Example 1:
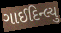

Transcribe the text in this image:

ગાઈદિન્લ્યુ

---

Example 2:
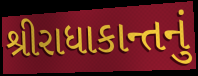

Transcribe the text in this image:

શ્રીરાધાકાન્તનું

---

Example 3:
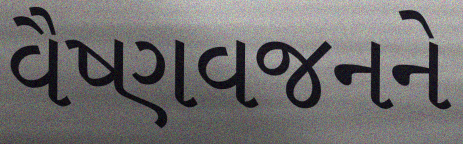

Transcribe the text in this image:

વૈષ્ણવજનને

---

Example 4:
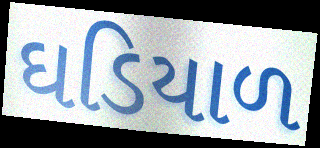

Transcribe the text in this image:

ઘડિયાળ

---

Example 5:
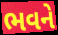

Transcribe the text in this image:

ભવને